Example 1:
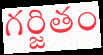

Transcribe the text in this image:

గర్జితం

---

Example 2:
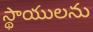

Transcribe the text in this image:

స్థాయులను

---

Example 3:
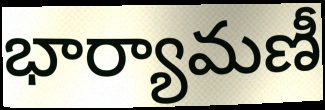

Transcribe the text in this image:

భార్యామణీ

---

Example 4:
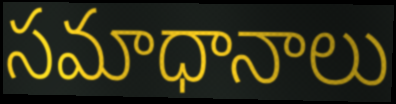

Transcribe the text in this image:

సమాధానాలు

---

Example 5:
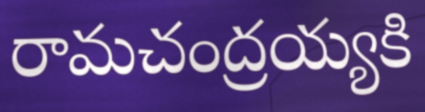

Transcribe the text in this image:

రామచంద్రయ్యకి